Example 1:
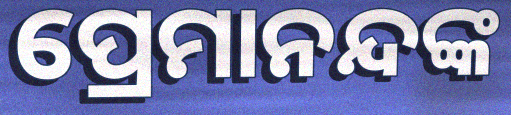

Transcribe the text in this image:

ପ୍ରେମାନନ୍ଦଙ୍କ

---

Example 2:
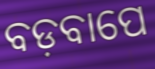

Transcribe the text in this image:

ବଡ଼ବାପେ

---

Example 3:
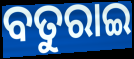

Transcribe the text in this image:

ବତୁରାଇ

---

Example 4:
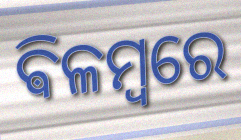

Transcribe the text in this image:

ଵିଳମ୍ବରେ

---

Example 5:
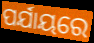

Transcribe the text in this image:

ପର୍ଯାୟରେ